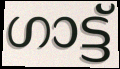
ഗാട്ട്